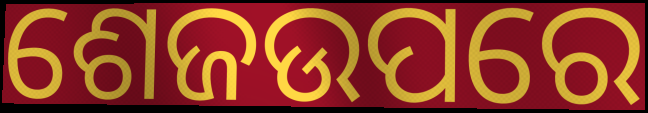
ଶେଜଉପରେ